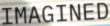
IMAGINED